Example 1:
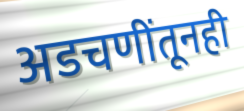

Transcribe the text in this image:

अडचणींतूनही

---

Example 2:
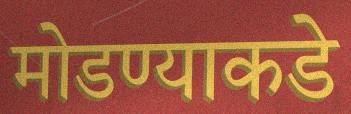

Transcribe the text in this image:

मोडण्याकडे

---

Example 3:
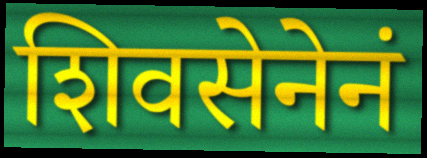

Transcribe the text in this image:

शिवसेनेनं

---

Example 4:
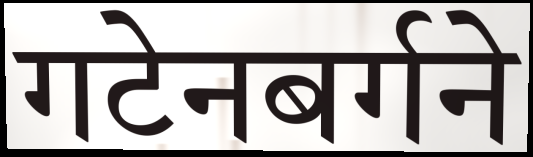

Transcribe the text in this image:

गटेनबर्गने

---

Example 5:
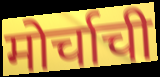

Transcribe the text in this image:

मोर्चाची